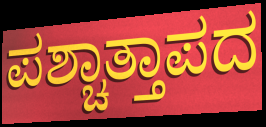
ಪಶ್ಚಾತ್ತಾಪದ